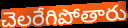
చెలరేగిపోతారు